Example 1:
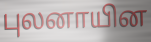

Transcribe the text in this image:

புலனாயின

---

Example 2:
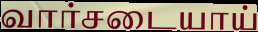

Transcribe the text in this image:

வார்சடையாய்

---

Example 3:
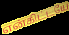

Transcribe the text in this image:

என்கிட்டயே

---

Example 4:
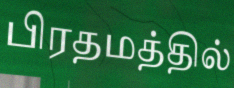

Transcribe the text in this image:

பிரதமத்தில்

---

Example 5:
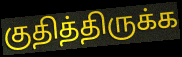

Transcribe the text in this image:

குதித்திருக்க